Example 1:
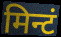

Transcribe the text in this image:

मिन्टं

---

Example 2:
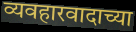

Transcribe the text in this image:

व्यवहारवादाच्या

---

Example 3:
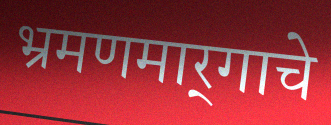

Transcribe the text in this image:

भ्रमणमार्गाचे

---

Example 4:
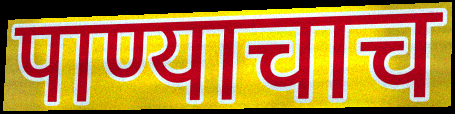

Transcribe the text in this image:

पाण्याचाच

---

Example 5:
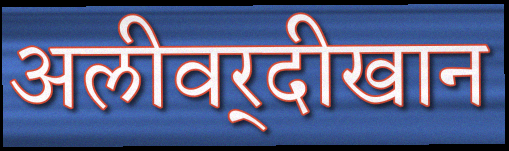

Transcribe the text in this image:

अलीवर्दीखान